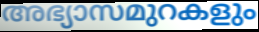
അഭ്യാസമുറകളും